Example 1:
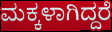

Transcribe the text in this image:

ಮಕ್ಕಳಾಗಿದ್ದರೆ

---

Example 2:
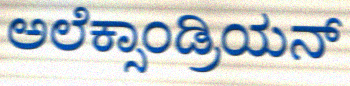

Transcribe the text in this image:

ಅಲೆಕ್ಸಾಂಡ್ರಿಯನ್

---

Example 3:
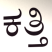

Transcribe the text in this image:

ಕತ್ತಿ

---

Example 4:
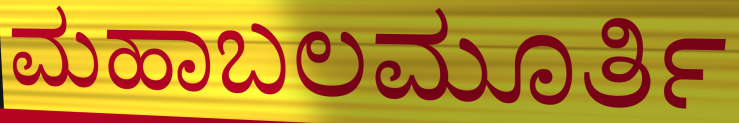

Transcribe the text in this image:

ಮಹಾಬಲಮೂರ್ತಿ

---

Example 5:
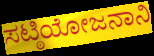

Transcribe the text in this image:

ಸಟ್ಠಿಯೋಜನಾನಿ